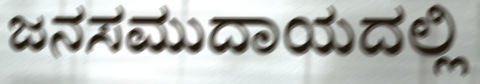
ಜನಸಮುದಾಯದಲ್ಲಿ